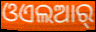
ଓଏଲଆର୍